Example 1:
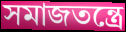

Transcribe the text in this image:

সমাজতন্ত্রে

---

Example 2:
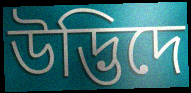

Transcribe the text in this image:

উদ্ভিদে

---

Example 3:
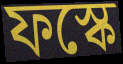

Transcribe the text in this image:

ফস্কে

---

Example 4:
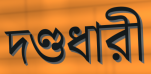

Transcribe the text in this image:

দণ্ডধারী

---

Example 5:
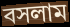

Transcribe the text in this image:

বসলাম